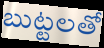
బుట్టలతో